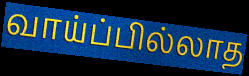
வாய்ப்பில்லாத